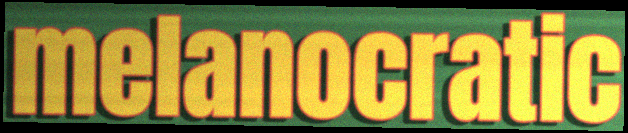
melanocratic